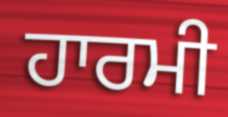
ਹਾਰਮੀ